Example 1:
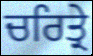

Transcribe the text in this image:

ਚਰਿਤ੍ਰੇ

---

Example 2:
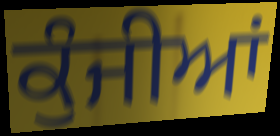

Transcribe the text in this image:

ਕੁੰਜੀਆਂ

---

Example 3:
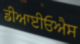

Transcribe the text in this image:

ਡੀਆਈਓਐਸ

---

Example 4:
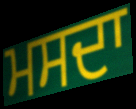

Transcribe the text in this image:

ਮਸਦਾ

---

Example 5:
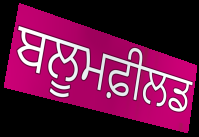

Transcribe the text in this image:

ਬਲੂਮਫ਼ੀਲਡ